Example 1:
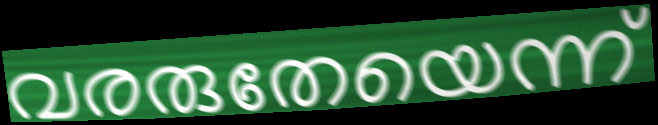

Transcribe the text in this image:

വരരുതേയെന്ന്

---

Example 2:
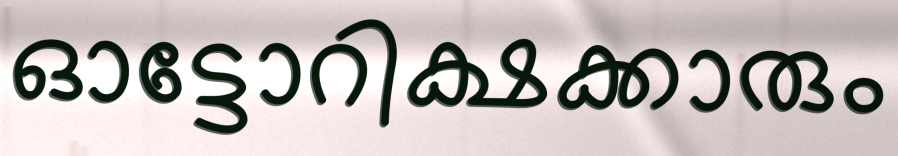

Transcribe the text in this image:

ഓട്ടോറിക്ഷക്കാരും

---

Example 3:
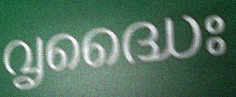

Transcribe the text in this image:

വൃദ്ധൈഃ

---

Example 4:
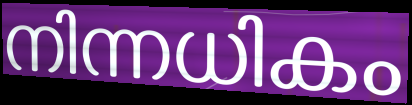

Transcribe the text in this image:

നിന്നധികം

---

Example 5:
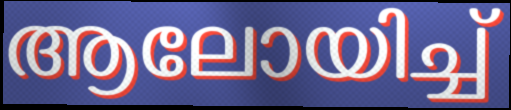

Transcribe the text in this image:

ആലോയിച്ച്